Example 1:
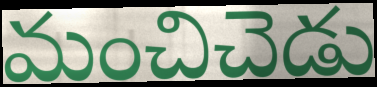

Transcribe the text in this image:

మంచిచెడు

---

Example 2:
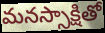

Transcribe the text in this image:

మనస్సాక్షితో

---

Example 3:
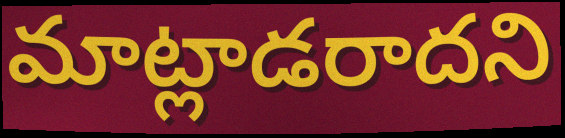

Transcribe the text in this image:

మాట్లాడరాదని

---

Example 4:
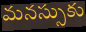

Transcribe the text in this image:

మనస్సుకు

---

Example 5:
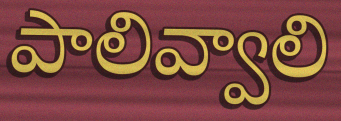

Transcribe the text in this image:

పాలివ్వాలి